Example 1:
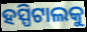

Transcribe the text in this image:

ହସ୍ପିଟାଲକୁ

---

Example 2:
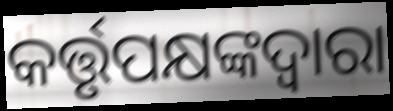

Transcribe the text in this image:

କର୍ତ୍ତୃପକ୍ଷଙ୍କଦ୍ଵାରା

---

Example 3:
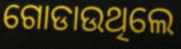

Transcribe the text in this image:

ଗୋଡାଉଥିଲେ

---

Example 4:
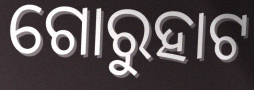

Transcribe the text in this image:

ଗୋରୁହାଟ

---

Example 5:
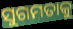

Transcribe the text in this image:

ସୁଗମତାକୁ